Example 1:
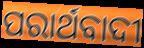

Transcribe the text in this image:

ପରାର୍ଥବାଦୀ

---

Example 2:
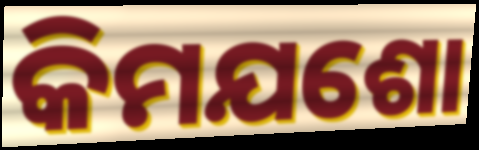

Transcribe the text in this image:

କିମଯଶୋ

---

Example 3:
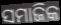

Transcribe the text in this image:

ସମାଜିକ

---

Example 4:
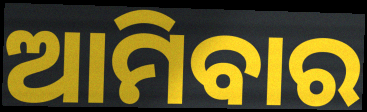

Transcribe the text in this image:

ଆମିବାର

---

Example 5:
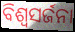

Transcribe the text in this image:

ବିଶ୍ଵସର୍ଜନା